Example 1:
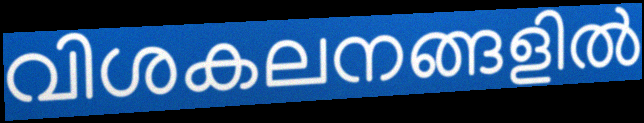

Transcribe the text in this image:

വിശകലനങ്ങളിൽ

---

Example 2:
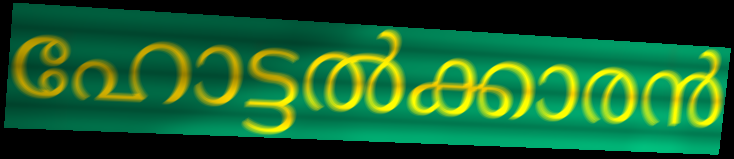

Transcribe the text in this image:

ഹോട്ടൽക്കാരൻ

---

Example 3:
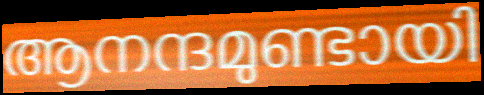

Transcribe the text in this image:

ആനന്ദമുണ്ടായി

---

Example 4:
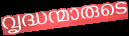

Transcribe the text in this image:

വൃദ്ധന്മാരുടെ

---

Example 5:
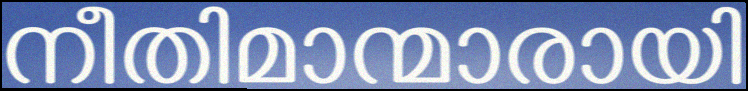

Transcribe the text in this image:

നീതിമാന്മാരായി